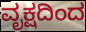
ವೃಕ್ಷದಿಂದ